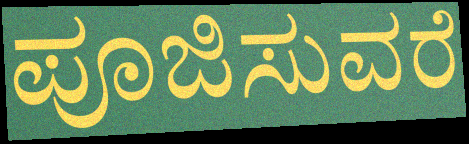
ಪೂಜಿಸುವರೆ